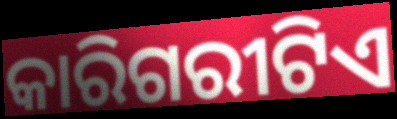
କାରିଗରୀଟିଏ